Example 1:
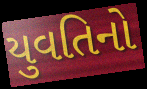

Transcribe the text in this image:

યુવતિનો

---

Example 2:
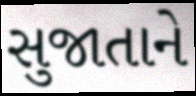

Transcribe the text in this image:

સુજાતાને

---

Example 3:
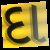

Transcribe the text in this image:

દા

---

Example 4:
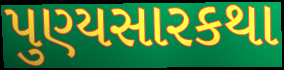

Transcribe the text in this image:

પુણ્યસારકથા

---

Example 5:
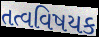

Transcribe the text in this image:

તત્વવિષયક